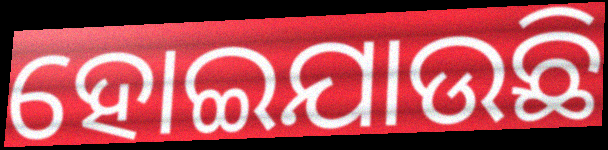
ହୋଇଯାଉଛି